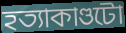
হত্যাকাণ্ডটো